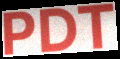
PDT